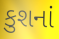
કુશનાં